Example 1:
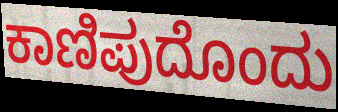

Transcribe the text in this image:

ಕಾಣಿಪುದೊಂದು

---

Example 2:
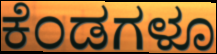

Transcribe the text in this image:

ಕೆಂಡಗಳೂ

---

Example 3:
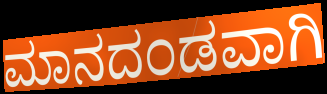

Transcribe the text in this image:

ಮಾನದಂಡವಾಗಿ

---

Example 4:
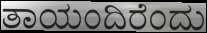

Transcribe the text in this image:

ತಾಯಂದಿರೆಂದು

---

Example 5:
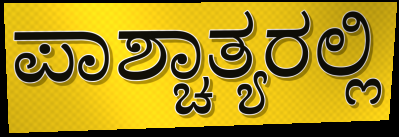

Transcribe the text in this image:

ಪಾಶ್ಚಾತ್ಯರಲ್ಲಿ